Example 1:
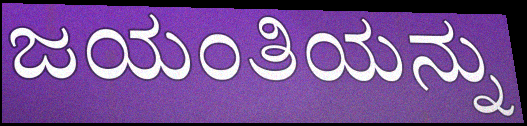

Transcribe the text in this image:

ಜಯಂತಿಯನ್ನು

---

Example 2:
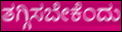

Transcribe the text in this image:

ತಗ್ಗಿಸಬೇಕೆಂದು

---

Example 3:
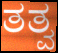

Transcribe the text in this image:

ತತ್ವ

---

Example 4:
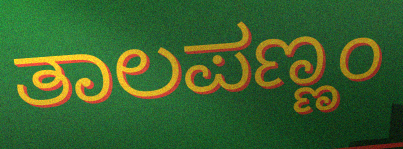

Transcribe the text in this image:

ತಾಲಪಣ್ಣಂ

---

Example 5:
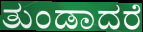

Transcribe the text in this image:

ತುಂಡಾದರೆ